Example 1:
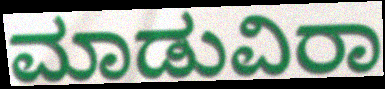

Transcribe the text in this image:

ಮಾಡುವಿರಾ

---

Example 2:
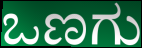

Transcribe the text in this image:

ಒಣಗು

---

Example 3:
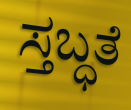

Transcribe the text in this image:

ಸ್ತಬ್ಧತೆ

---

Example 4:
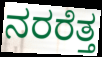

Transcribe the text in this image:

ನರರೆತ್ತ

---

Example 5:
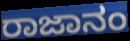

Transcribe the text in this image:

ರಾಜಾನಂ